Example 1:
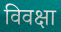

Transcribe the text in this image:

विवक्षा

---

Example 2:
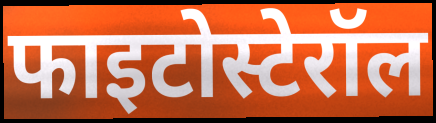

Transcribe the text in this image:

फाइटोस्टेरॉल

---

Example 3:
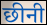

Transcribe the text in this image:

छीनी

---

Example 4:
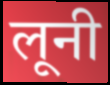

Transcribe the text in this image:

लूनी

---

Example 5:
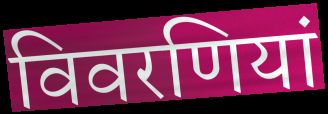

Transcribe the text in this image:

विवरणियां